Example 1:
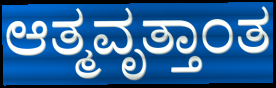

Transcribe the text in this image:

ಆತ್ಮವೃತ್ತಾಂತ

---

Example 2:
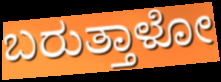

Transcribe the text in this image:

ಬರುತ್ತಾಳೋ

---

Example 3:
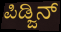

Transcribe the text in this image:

ಪಿಡ್ಜಿನ್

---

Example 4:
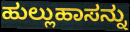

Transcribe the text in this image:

ಹುಲ್ಲುಹಾಸನ್ನು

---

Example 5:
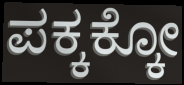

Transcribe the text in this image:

ಪಕ್ಕಕ್ಕೋ